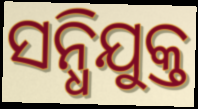
ସନ୍ଧିଯୁକ୍ତ